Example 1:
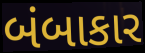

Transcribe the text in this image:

બંબાકાર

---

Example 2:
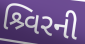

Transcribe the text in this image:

શ્ર્વિરની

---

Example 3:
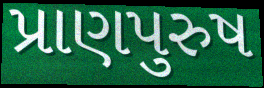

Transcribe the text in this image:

પ્રાણપુરુષ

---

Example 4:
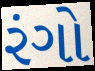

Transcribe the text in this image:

રંગો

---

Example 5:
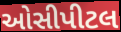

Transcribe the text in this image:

ઓસીપીટલ